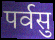
पर्वसु